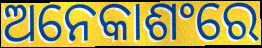
ଅନେକାଶଂରେ